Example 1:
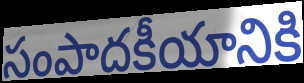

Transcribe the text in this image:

సంపాదకీయానికి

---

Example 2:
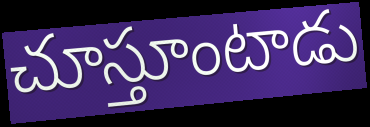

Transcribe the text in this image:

చూస్తూంటాడు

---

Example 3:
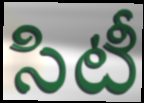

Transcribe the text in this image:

సిటీ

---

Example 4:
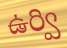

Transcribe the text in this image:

ఉర్వి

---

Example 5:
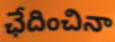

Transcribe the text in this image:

ఛేదించినా